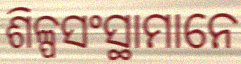
ଶିଳ୍ପସଂସ୍ଥାମାନେ